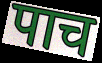
पाच